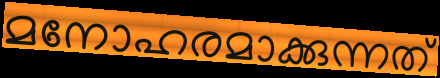
മനോഹരമാക്കുന്നത്